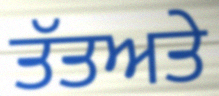
ਤੱਤਅਤੇ